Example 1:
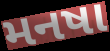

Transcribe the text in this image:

મનષા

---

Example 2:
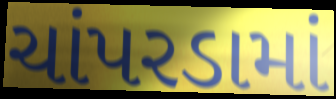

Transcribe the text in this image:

ચાંપરડામાં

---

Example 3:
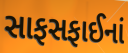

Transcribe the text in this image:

સાફસફાઈનાં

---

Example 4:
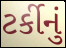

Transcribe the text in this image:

ટર્કીનું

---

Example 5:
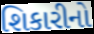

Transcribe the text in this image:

શિકારીનો